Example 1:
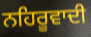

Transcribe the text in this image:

ਨਹਿਰੂਵਾਦੀ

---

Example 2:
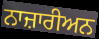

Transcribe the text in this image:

ਨਾਜ਼ਾਰੀਅਨ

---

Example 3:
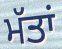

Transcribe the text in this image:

ਮੱਤਾਂ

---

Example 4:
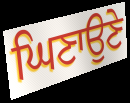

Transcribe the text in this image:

ਘਿਣਾਉਣੇ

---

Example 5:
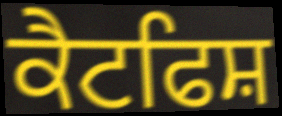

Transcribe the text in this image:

ਕੈਟਫਿਸ਼